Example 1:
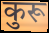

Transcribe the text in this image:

कुरू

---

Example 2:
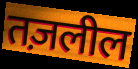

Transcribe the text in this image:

तज़लील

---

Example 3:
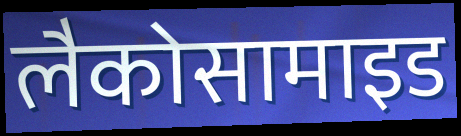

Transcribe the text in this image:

लैकोसामाइड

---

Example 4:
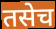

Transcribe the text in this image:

तसेच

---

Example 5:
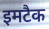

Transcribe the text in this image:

इमटैक